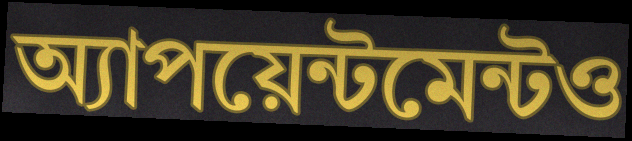
অ্যাপয়েন্টমেন্টও